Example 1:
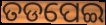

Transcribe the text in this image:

ତଡପେଇ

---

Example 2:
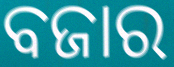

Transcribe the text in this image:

ବଜାର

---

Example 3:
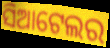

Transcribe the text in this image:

ସିଆଟେଲର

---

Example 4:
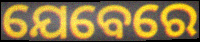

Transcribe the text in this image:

ଯେବେରେ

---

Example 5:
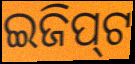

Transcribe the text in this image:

ଇଜିପ୍‍ଟ